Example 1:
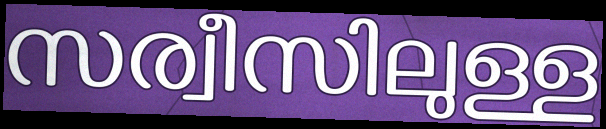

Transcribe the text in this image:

സര്വീസിലുള്ള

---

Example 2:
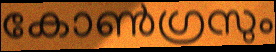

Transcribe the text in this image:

കോൺഗ്രസും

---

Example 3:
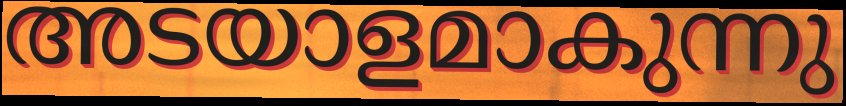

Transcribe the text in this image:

അടയാളമാകുന്നു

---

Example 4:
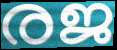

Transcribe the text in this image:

രജ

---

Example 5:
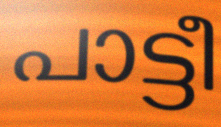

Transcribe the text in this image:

പാട്ടീ